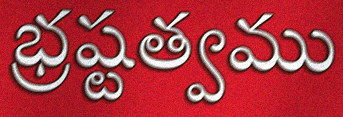
భ్రష్టత్వము